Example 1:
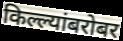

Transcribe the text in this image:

किल्ल्यांबरोबर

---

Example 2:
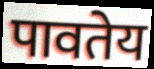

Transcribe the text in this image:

पावतेय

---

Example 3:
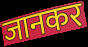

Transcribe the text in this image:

जानकर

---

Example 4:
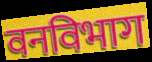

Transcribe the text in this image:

वनविभाग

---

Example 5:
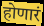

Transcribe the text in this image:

होणारं